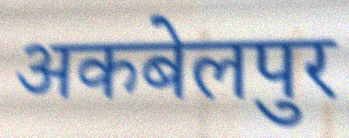
अकबेलपुर